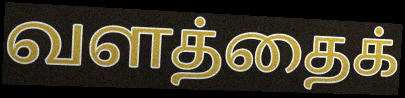
வளத்தைக்